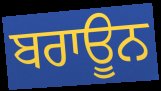
ਬਰਾਊਨ